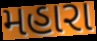
મહારા